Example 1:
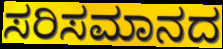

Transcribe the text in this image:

ಸರಿಸಮಾನದ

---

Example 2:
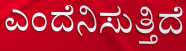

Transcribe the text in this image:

ಎಂದೆನಿಸುತ್ತಿದೆ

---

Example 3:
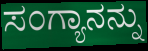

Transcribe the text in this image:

ಸಂಗ್ಯಾನನ್ನು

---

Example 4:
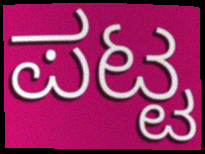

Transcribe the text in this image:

ಪಟ್ಟ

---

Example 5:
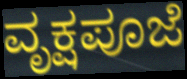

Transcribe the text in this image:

ವೃಕ್ಷಪೂಜೆ